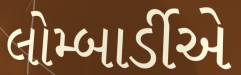
લોમ્બાર્ડીએ